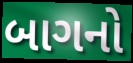
બાગનો